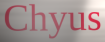
Chyus